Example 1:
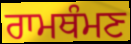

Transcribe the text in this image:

ਰਾਮਥੰਮਣ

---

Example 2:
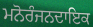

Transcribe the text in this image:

ਮਨੋਰੰਜਨਦਾਇਕ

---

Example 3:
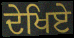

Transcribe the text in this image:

ਦੇਖਿਏ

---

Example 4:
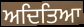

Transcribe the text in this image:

ਅਦਿਤਿਆ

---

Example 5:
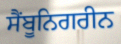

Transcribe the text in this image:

ਸੈਂਬੂਨਿਗਰੀਨ